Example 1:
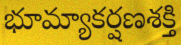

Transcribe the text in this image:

భూమ్యాకర్షణశక్తి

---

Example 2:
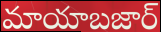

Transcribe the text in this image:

మాయాబజార్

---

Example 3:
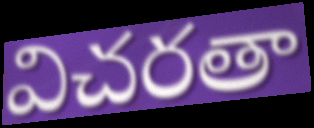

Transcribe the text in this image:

విచరతా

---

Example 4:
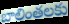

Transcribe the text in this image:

బాలింతలకు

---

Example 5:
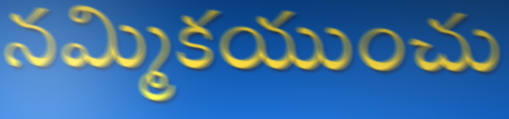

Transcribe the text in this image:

నమ్మికయుంచు